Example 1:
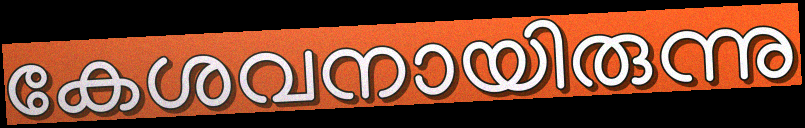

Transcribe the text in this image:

കേശവനായിരുന്നു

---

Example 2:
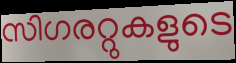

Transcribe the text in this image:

സിഗരറ്റുകളുടെ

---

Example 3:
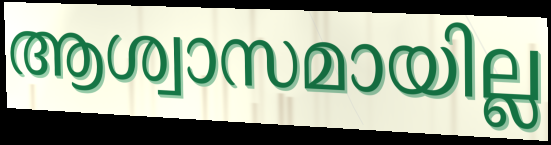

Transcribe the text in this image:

ആശ്വാസമായില്ല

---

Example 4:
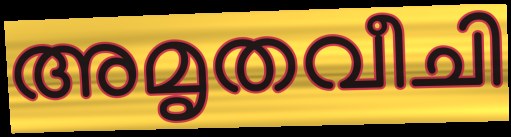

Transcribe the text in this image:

അമൃതവീചി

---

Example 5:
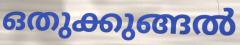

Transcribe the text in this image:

ഒതുക്കുങ്ങൽ